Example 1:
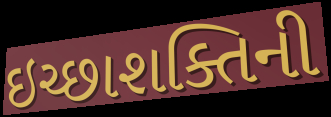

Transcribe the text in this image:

ઇચ્છાશક્તિની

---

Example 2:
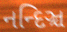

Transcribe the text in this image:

નન્દિઞ્ચ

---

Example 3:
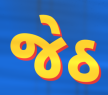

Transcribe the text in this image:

જેઠ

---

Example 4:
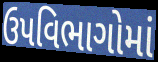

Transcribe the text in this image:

ઉપવિભાગોમાં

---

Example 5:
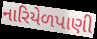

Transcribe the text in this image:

નારિયેળપાણી